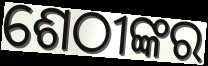
ଶେଠୀଙ୍କର